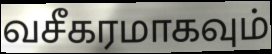
வசீகரமாகவும்